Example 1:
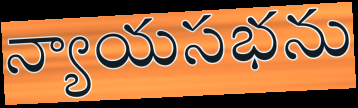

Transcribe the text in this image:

న్యాయసభను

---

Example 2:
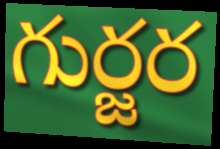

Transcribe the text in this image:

గుర్జర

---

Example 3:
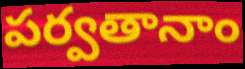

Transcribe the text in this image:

పర్వతానాం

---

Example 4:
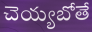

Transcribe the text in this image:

చెయ్యబోతే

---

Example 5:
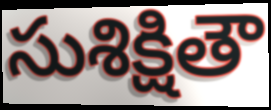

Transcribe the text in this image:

సుశిక్షితౌ